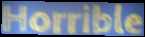
Horrible